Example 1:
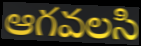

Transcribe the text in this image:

ఆగవలసి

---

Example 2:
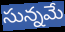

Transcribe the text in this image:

సున్నమే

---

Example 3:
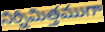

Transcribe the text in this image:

నిర్నిమిత్తముగా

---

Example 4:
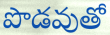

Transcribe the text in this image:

పొడవుతో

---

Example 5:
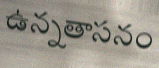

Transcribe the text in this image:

ఉన్నతాసనం